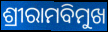
ଶ୍ରୀରାମବିମୁଖ